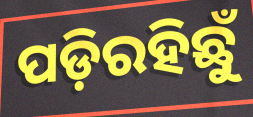
ପଡ଼ିରହିଛୁଁ